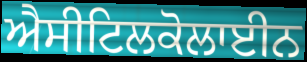
ਐਸੀਟਿਲਕੋਲਾਈਨ